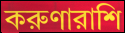
করুণারাশি